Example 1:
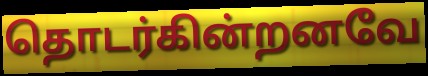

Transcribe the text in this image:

தொடர்கின்றனவே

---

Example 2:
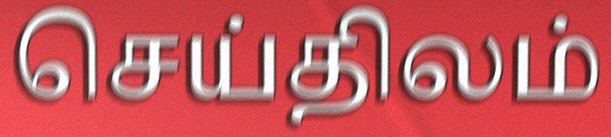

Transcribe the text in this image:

செய்திலம்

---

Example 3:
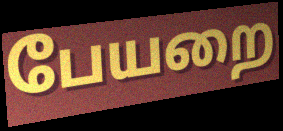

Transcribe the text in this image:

பேயறை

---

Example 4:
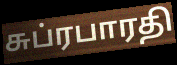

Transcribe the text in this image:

சுப்ரபாரதி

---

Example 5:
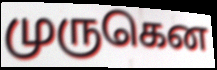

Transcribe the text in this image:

முருகென